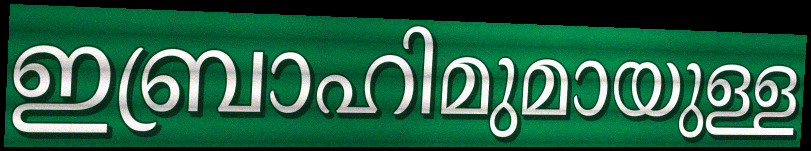
ഇബ്രാഹിമുമായുള്ള